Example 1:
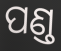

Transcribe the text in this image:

ପଣ୍ଡ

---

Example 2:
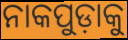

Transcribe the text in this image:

ନାକପୁଡ଼ାକୁ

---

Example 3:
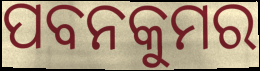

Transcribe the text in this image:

ପବନକୁମର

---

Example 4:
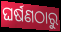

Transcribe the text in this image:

ଘର୍ଷଣଠାରୁ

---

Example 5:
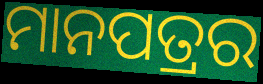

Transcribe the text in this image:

ମାନପତ୍ରର